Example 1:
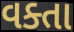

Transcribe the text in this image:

વક્તા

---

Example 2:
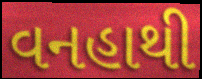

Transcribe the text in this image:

વનહાથી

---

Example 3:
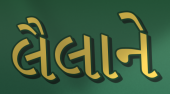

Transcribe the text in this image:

લૈલાને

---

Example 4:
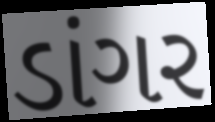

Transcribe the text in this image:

ડાંગર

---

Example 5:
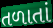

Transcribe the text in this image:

તળાતાં